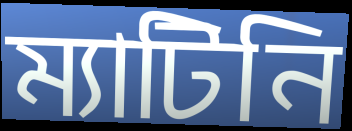
ম্যাটিনি